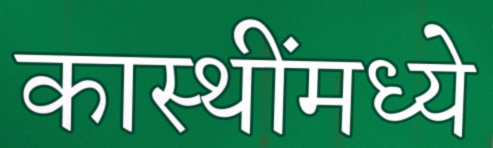
कास्थींमध्ये